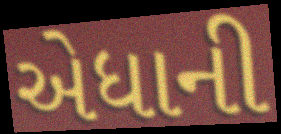
એધાની